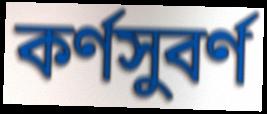
কর্ণসুবর্ণ